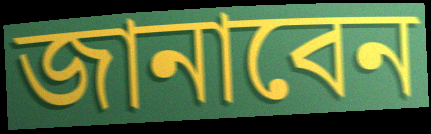
জানাবেন